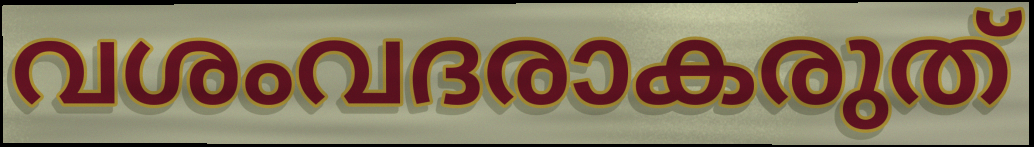
വശംവദരാകരുത്